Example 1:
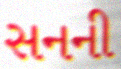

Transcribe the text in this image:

સનની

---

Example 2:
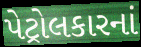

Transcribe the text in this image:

પેટ્રોલકારનાં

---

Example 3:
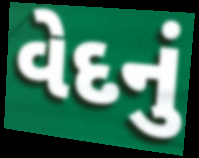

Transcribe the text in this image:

વેદનું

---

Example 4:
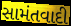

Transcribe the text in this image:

સામંતવાદી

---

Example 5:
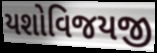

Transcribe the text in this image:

યશોવિજયજી